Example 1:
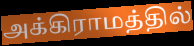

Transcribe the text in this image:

அக்கிராமத்தில்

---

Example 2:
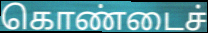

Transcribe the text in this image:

கொண்டைச்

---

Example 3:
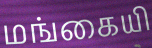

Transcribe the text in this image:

மங்கையி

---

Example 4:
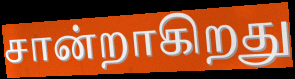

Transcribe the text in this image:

சான்றாகிறது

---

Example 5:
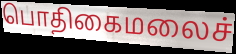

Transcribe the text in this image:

பொதிகைமலைச்